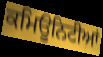
ਕਮਿਊਨਿਟੀਆਂ